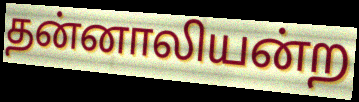
தன்னாலியன்ற